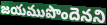
జయముపొందెనని